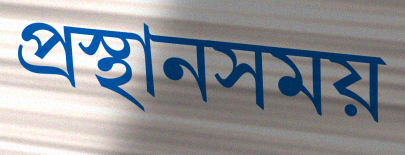
প্রস্থানসময়